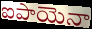
ఐపాయెనా